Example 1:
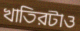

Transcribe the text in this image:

খাতিরটাও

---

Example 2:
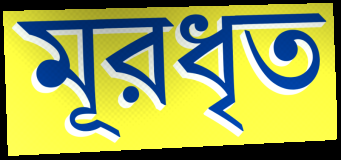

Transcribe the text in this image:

মূরধৃত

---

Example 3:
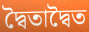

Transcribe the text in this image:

দ্বৈতাদ্বৈত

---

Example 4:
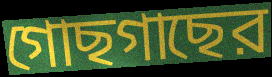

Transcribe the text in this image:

গোছগাছের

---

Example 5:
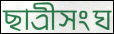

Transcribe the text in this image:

ছাত্রীসংঘ